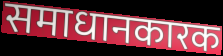
समाधानकारक